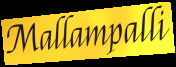
Mallampalli